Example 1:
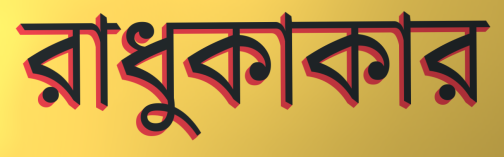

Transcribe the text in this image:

রাধুকাকার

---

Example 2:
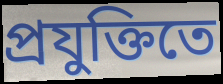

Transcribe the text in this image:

প্রযুক্তিতে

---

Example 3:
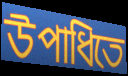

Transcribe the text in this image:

উপাধিতে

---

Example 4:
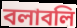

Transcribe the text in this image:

বলাবলি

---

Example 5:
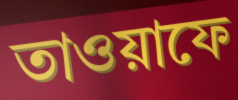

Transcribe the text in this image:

তাওয়াফে